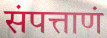
संपत्ताणं